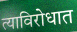
त्याविरोधात